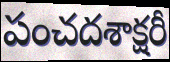
పంచదశాక్షరీ